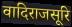
वादिराजसूरि